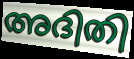
അദിതി